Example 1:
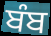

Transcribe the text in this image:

ਬੰਬ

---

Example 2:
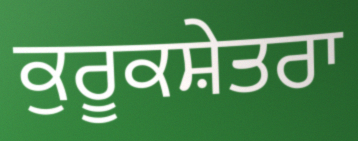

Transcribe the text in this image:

ਕੁਰੂਕਸ਼ੇਤਰਾ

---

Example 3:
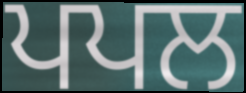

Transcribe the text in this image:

ਪਪਲ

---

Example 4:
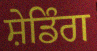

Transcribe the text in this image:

ਸ਼ੇਡਿੰਗ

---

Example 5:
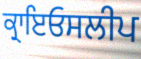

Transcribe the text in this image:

ਕ੍ਰਾਇਓਸਲੀਪ